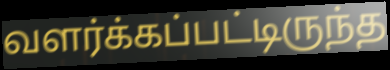
வளர்க்கப்பட்டிருந்த